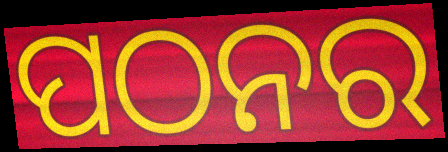
ପଠନର